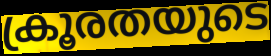
ക്രൂരതയുടെ